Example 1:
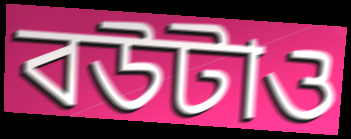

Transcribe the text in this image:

বউটাও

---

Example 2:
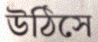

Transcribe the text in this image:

উঠিসে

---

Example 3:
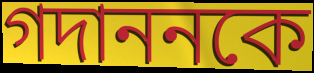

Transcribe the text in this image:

গদাননকে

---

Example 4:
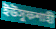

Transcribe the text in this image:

ইউসুফশাহী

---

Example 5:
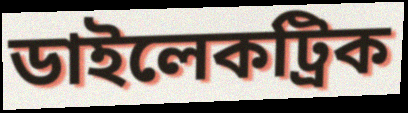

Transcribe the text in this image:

ডাইলেকট্রিক